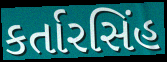
કર્તારસિંહ